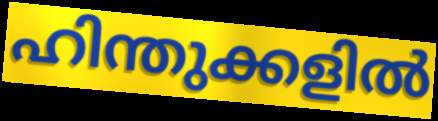
ഹിന്തുക്കളിൽ